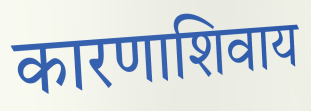
कारणाशिवाय